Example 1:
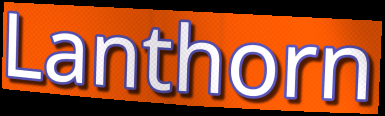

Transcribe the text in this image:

Lanthorn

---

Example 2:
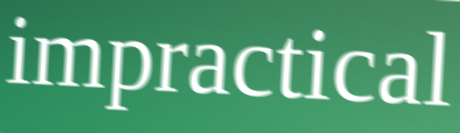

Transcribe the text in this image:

impractical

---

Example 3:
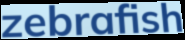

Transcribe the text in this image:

zebrafish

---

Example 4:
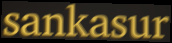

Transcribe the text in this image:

sankasur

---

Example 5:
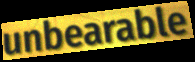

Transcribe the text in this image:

unbearable